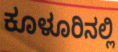
ಕೂಳೂರಿನಲ್ಲಿ